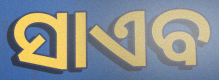
ସାଏବ